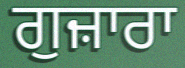
ਗੁਜ਼ਾਰਾ